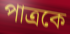
পাত্রকে